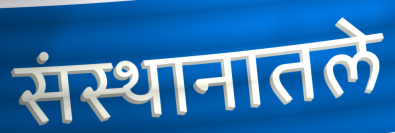
संस्थानातले